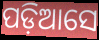
ପଡ଼ିଆସେ